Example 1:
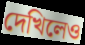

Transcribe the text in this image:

দেখিলেও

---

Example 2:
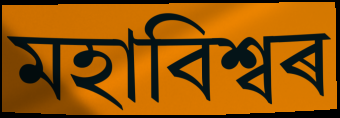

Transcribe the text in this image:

মহাবিশ্বৰ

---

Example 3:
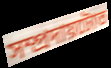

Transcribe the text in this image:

সম্প্ৰদায়টোত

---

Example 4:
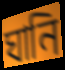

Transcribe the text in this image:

ঘানি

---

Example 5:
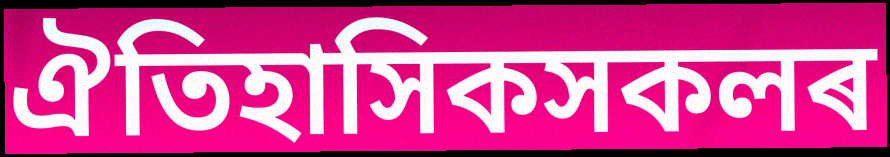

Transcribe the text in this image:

ঐতিহাসিকসকলৰ